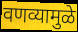
वणव्यामुळे